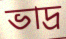
ভাদ্র